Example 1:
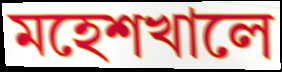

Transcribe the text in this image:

মহেশখালে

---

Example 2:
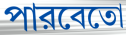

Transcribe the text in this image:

পারবেতো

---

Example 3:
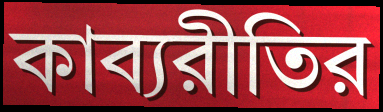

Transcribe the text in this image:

কাব্যরীতির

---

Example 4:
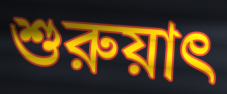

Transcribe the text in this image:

শুরুয়াৎ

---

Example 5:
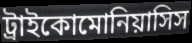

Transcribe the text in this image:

ট্রাইকোমোনিয়াসিস